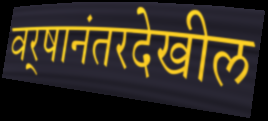
वर्षानंतरदेखील